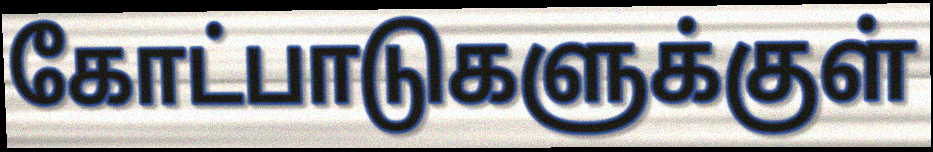
கோட்பாடுகளுக்குள்